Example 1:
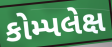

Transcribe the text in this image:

કોમ્પલેક્ષ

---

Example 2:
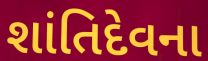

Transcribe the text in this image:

શાંતિદેવના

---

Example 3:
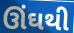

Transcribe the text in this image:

ઊંઘથી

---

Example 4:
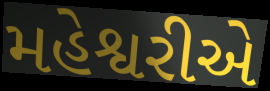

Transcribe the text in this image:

મહેશ્વરીએ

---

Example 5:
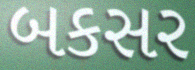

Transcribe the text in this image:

બકસર